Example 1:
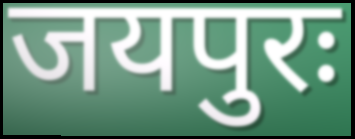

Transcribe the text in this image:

जयपुरः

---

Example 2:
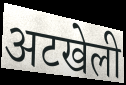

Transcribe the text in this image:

अटखेली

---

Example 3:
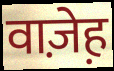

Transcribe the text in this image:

वाज़ेह़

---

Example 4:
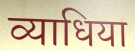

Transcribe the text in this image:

व्याधिया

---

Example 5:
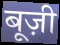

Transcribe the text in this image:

बूज़ी